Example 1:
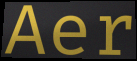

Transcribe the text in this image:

Aer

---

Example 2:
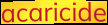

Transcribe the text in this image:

acaricide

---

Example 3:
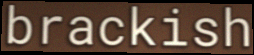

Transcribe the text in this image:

brackish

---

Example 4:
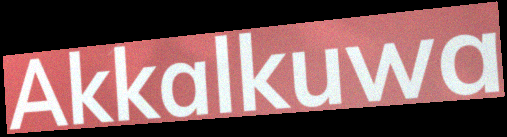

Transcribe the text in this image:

Akkalkuwa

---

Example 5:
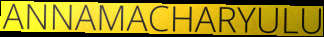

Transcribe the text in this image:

ANNAMACHARYULU